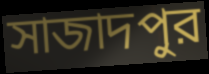
সাজাদপুর